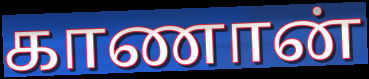
காணான்